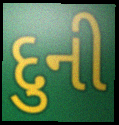
દુની